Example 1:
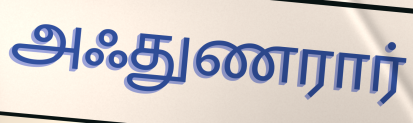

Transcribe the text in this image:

அஃதுணரார்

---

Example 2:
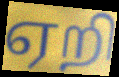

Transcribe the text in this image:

ஏறி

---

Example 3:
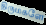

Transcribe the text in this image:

திருமகளே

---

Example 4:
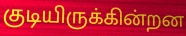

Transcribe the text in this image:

குடியிருக்கின்றன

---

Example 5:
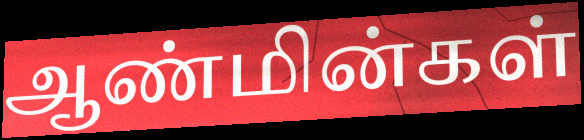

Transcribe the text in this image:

ஆண்மின்கள்